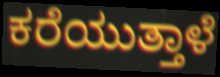
ಕರೆಯುತ್ತಾಳೆ